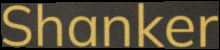
Shanker